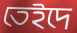
তেইদে